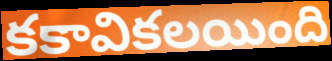
కకావికలయింది